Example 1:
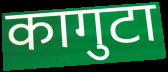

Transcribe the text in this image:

कागुटा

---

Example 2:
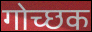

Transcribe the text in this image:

गोच्छक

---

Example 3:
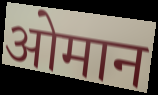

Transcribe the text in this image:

ओमान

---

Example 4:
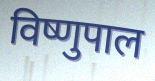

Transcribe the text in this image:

विष्णुपाल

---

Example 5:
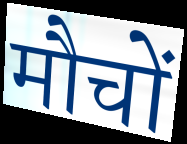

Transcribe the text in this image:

मौचों